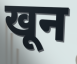
खून